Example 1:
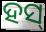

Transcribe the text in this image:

ହସ୍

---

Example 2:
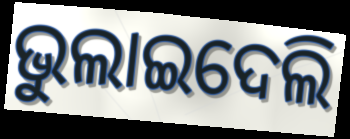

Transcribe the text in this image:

ଭୁଲାଇଦେଲି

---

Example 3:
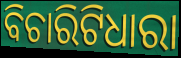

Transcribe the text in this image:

ବିଚାରିଟିଧାରା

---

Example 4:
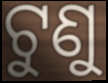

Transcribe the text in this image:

ଟୁଣୁ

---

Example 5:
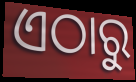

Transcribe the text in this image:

ଏଠାରୁ